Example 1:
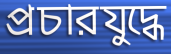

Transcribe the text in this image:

প্রচারযুদ্ধে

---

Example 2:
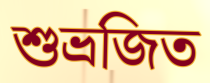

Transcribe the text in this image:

শুভ্রজিত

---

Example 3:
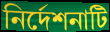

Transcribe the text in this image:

নির্দেশনাটি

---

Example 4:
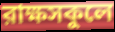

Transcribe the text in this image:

রাক্ষসকুলে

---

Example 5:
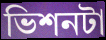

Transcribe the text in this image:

ভিশনটা